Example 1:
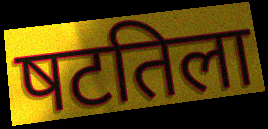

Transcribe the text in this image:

षटतिला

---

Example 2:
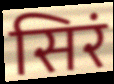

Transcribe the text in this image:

सिरं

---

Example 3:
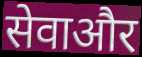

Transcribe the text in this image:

सेवाऔर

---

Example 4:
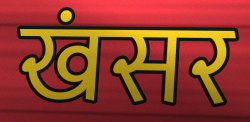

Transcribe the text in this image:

खंसर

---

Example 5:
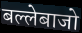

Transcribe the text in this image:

बल्लेबाजो